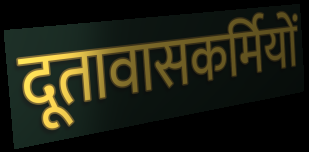
दूतावासकर्मियों